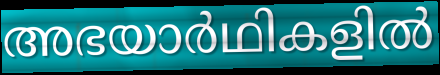
അഭയാർഥികളിൽ